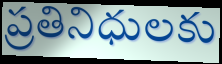
ప్రతినిధులకు